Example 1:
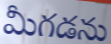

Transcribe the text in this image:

మీగడను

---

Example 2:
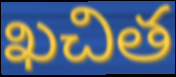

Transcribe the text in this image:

ఖచిత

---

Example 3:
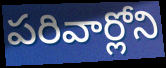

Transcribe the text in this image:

పరివార్లోని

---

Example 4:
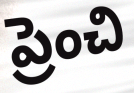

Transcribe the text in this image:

ప్రెంచి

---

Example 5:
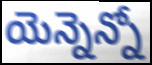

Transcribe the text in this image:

యెన్నెన్నో